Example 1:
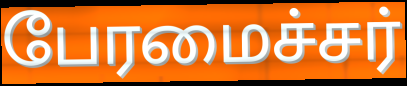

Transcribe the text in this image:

பேரமைச்சர்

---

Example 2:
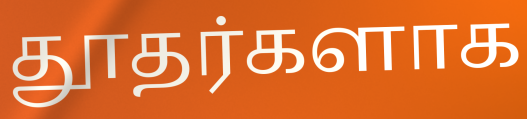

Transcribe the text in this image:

தூதர்களாக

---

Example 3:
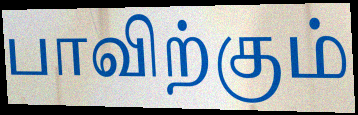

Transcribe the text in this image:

பாவிற்கும்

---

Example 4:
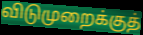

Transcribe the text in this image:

விடுமுறைக்குத்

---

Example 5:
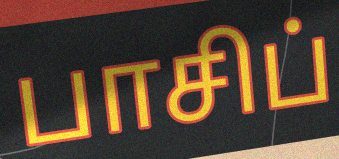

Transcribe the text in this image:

பாசிப்